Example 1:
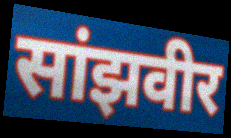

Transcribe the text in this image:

सांझवीर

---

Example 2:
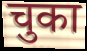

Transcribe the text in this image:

चुका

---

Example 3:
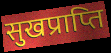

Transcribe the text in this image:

सुखप्राप्ति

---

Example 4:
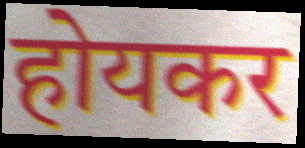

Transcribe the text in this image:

होयकर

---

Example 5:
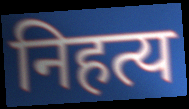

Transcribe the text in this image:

निहत्य